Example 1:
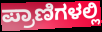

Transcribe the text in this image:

ಪ್ರಾಣಿಗಳಲ್ಲಿ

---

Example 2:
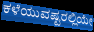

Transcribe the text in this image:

ಕಳೆಯುವಷ್ಟರಲ್ಲಿಯೇ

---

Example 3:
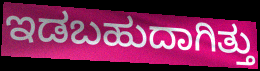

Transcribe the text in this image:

ಇಡಬಹುದಾಗಿತ್ತು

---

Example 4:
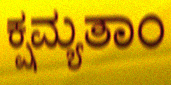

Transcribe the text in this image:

ಕ್ಷಮ್ಯತಾಂ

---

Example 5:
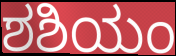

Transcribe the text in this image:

ಶಶಿಯಂ